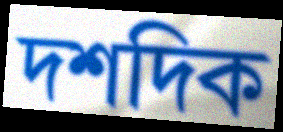
দশদিক